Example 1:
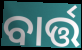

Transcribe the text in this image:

ବାର୍ତ୍ତ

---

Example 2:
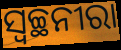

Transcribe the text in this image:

ସ୍ବଚ୍ଛନୀରା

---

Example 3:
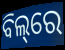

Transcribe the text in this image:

ବିଲ୍‌ରେ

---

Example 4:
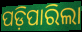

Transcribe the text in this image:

ପଡ଼ିପାରିଲା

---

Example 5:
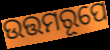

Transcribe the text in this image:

ଉତ୍ତମରୂପେ